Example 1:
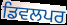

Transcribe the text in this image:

ਡਿਵਲਪਰ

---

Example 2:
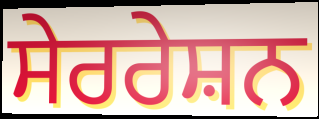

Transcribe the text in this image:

ਸੇਰਰੇਸ਼ਨ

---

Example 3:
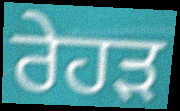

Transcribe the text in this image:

ਰੇਹੜ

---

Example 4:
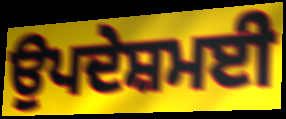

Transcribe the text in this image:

ਉਪਦੇਸ਼ਮਈ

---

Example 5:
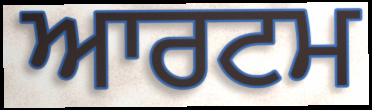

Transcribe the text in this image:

ਆਰਟਮ